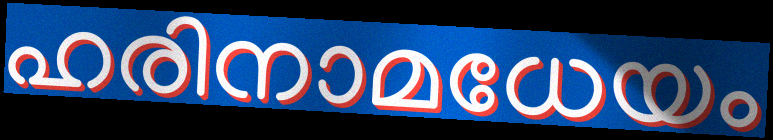
ഹരിനാമധേയം